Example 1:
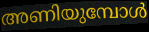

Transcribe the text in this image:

അണിയുമ്പോൾ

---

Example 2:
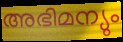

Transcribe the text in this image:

അഭിമന്യും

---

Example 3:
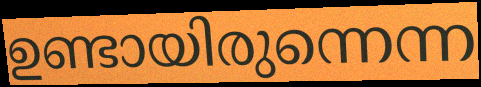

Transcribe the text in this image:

ഉണ്ടായിരുന്നെന്ന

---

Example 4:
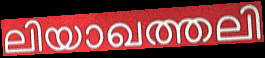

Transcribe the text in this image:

ലിയാഖത്തലി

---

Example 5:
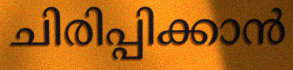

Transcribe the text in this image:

ചിരിപ്പിക്കാൻ